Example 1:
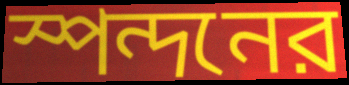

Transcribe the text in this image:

স্পন্দনের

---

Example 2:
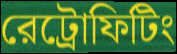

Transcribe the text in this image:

রেট্রোফিটিং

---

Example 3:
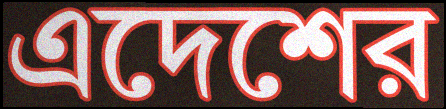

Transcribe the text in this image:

এদেশের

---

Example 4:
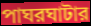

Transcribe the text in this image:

পাঘরঘাটার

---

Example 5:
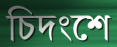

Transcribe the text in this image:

চিদংশে